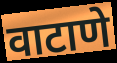
वाटाणे